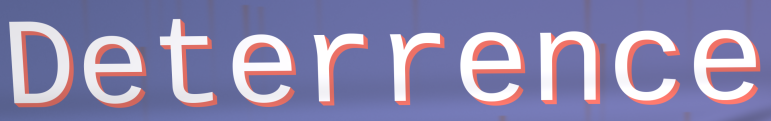
Deterrence